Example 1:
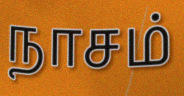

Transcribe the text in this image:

நாசம்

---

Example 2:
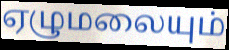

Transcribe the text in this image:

ஏழுமலையும்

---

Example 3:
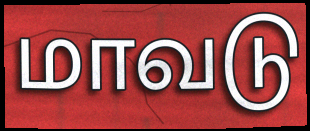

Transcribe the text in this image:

மாவடு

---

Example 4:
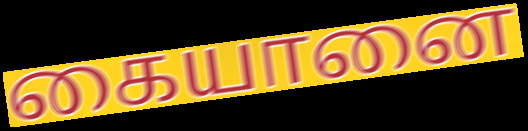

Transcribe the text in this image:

கையானை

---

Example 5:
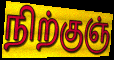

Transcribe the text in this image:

நிற்குஞ்